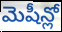
మెషీన్లో